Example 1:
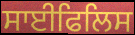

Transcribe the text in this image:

ਸਾਈਫਿਲਿਸ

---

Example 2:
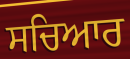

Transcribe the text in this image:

ਸਚਿਆਰ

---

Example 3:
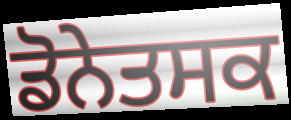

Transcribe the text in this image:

ਡੋਨੇਤਸਕ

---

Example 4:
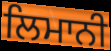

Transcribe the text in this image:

ਲਿਮਾਨੀ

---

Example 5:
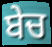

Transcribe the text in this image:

ਬੇਚ